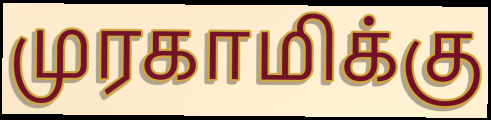
முரகாமிக்கு